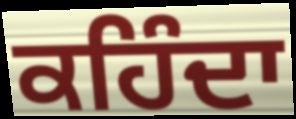
ਕਹਿੰਦਾ